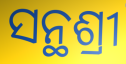
ସନ୍ଥଶ୍ରୀ